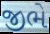
જીભે